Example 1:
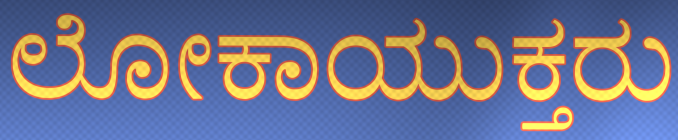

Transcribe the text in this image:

ಲೋಕಾಯುಕ್ತರು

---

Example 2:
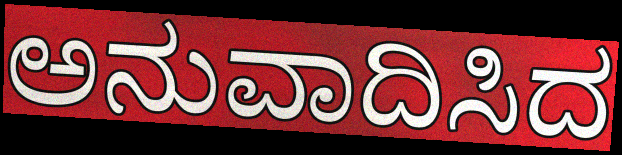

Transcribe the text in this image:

ಅನುವಾದಿಸಿದ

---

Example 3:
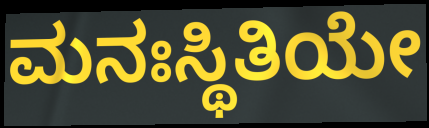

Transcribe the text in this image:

ಮನಃಸ್ಥಿತಿಯೇ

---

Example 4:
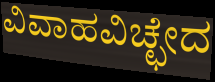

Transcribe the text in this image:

ವಿವಾಹವಿಚ್ಛೇದ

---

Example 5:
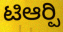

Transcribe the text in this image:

ಟಿಆರ್‍ಪಿ